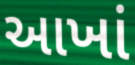
આખાં